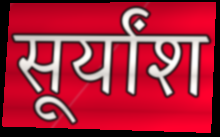
सूर्यांश